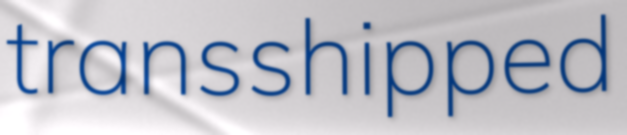
transshipped